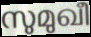
സുമുഖീ